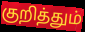
குறித்தும்